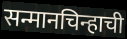
सन्मानचिन्हाची